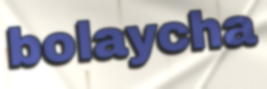
bolaycha